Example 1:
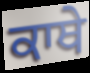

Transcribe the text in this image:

ਕਾਥੇ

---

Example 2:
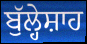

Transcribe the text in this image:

ਬੁੱਲ੍ਹੇਸ਼ਾਹ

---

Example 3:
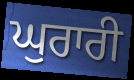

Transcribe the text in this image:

ਘੁਰਾਰੀ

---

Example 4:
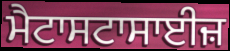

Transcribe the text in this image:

ਮੈਟਾਸਟਾਸਾਈਜ਼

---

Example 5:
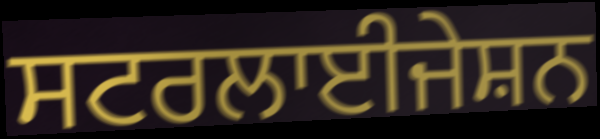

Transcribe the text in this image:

ਸਟਰਲਾਈਜੇਸ਼ਨ